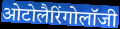
ओटोलैरिंगोलॉजी